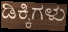
ಡಿಕ್ಕಿಗಳು